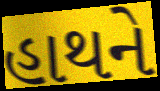
હાથને